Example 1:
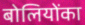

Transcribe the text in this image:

बोलियोंका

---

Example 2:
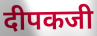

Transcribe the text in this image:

दीपकजी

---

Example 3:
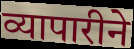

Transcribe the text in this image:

व्यापारीने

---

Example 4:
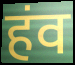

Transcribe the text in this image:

हंव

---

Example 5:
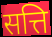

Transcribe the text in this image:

सत्ति